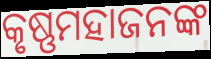
କୃଷ୍ଣମହାଜନଙ୍କ